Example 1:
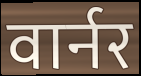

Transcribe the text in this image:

वार्नर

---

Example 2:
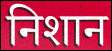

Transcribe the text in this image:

निशान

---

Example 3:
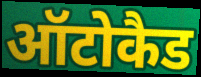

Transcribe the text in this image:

ऑटोकैड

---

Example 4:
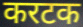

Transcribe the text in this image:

करटक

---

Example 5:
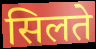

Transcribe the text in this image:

सिलते